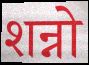
शन्नो